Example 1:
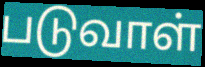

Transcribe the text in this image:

படுவாள்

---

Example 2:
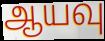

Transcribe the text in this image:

ஆயவு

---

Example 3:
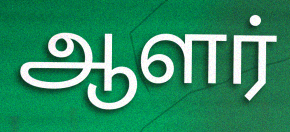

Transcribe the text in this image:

ஆளர்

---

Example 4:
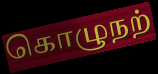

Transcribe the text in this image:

கொழுநற்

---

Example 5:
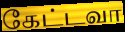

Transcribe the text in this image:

கேட்டவா